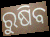
ରୁଷିବ